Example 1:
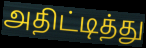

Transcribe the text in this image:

அதிட்டித்து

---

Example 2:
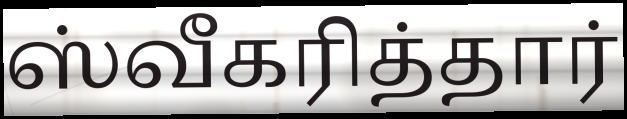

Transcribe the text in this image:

ஸ்வீகரித்தார்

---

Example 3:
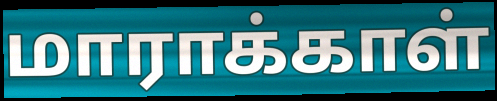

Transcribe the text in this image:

மாராக்காள்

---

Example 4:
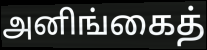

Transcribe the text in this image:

அனிங்கைத்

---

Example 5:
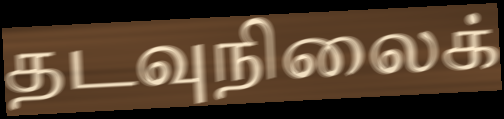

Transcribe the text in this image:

தடவுநிலைக்